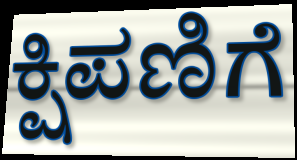
ಕ್ಷಿಪಣಿಗೆ